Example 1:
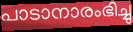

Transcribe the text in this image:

പാടാനാരംഭിച്ചു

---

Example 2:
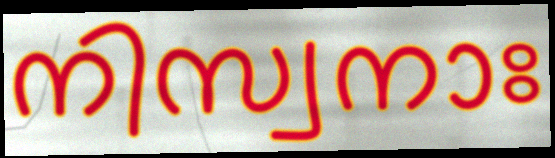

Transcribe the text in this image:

നിസ്വനാഃ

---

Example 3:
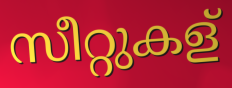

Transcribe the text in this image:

സീറ്റുകള്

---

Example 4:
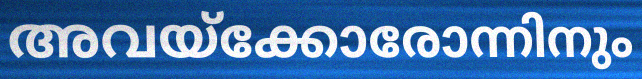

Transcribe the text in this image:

അവയ്ക്കോരോന്നിനും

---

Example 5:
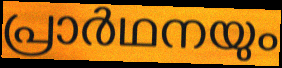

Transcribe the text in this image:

പ്രാർഥനയും